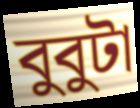
বুবুটা